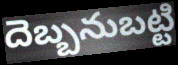
దెబ్బనుబట్టి